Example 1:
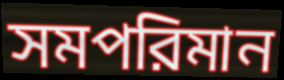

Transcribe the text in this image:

সমপরিমান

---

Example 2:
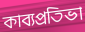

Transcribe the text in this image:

কাব্যপ্রতিভা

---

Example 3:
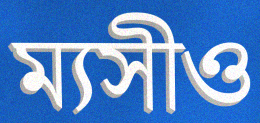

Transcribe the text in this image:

ম্যসীও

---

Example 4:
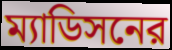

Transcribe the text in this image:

ম্যাডিসনের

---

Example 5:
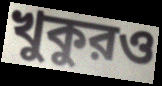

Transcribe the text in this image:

খুকুরও